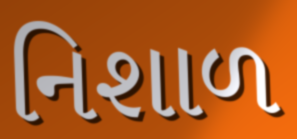
નિશાળ